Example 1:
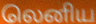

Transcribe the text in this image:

லெனிய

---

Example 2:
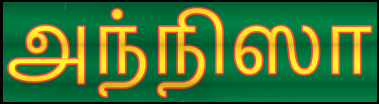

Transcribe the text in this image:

அந்நிஸா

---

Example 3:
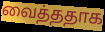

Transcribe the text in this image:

வைத்ததாக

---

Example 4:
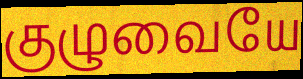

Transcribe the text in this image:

குழுவையே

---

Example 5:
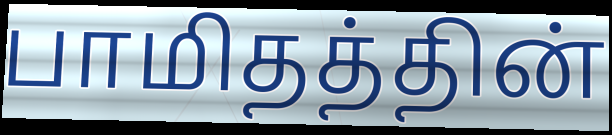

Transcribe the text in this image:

பாமிதத்தின்